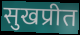
सुखप्रीत